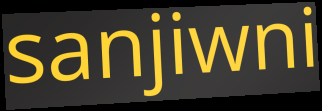
sanjiwni